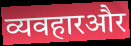
व्यवहारऔर